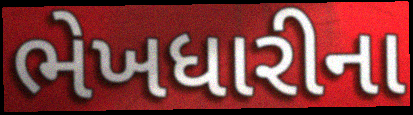
ભેખધારીના